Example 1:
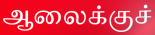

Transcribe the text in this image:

ஆலைக்குச்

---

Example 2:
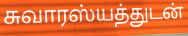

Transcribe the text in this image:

சுவாரஸ்யத்துடன்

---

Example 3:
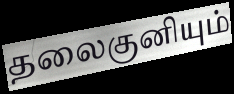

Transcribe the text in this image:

தலைகுனியும்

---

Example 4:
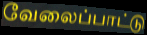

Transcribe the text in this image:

வேலைப்பாட்டு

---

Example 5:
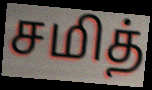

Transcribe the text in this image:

சமித்